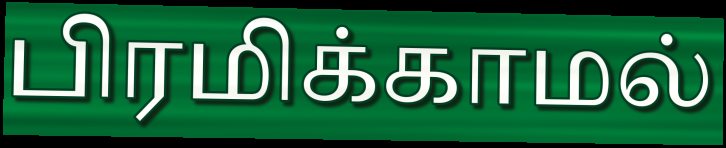
பிரமிக்காமல்